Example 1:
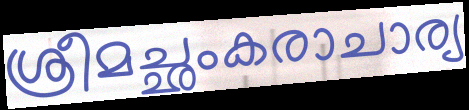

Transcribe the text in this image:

ശ്രീമച്ഛംകരാചാര്യ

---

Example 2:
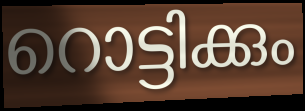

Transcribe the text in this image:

റൊട്ടിക്കും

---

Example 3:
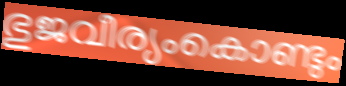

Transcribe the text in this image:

ഭുജവീര്യംകൊണ്ടും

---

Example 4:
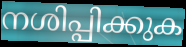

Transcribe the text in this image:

നശിപ്പിക്കുക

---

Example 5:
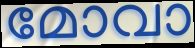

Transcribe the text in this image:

മോവാ